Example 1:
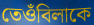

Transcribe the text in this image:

তেওঁবিলাকে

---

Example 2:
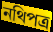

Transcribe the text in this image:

নথিপত্ৰ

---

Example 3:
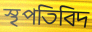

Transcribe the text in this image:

স্থপতিবিদ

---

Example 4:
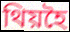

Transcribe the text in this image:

থিয়হৈ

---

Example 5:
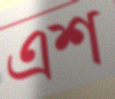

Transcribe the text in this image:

এশ